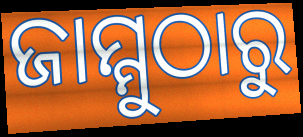
ଜାମ୍ମୁଠାରୁ